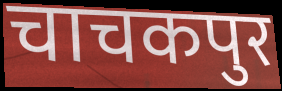
चाचकपुर